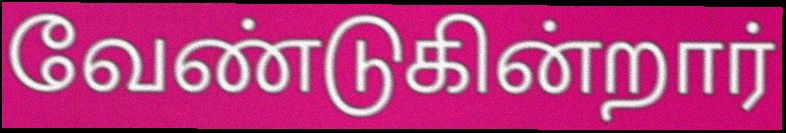
வேண்டுகின்றார்